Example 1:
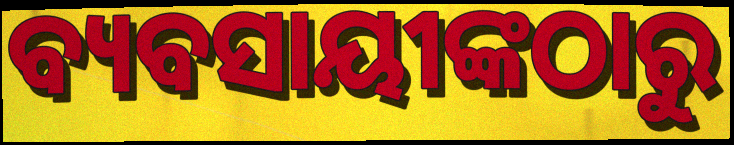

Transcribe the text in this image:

ବ୍ୟବସାୟୀଙ୍କଠାରୁ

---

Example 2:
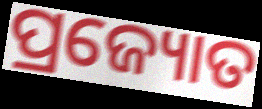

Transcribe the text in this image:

ପ୍ରଜ୍ୟୋତ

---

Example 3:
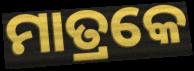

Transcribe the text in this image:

ମାତ୍ରକେ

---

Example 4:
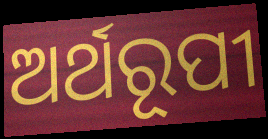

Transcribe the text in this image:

ଅର୍ଥରୂପୀ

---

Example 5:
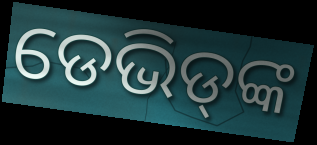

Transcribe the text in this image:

ଡେଭିଡ୍‌ଙ୍କ